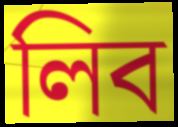
লিব